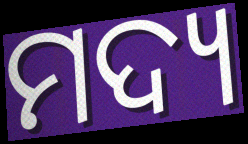
ମଦ୍ଯ